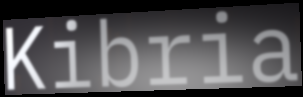
Kibria